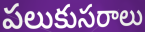
పలుకుసరాలు